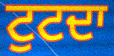
ਟੁਟਦਾ